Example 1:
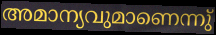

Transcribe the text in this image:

അമാന്യവുമാണെന്നു്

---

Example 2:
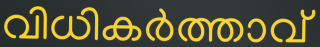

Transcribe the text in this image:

വിധികർത്താവ്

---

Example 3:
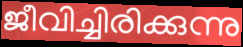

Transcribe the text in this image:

ജീവിച്ചിരിക്കുന്നു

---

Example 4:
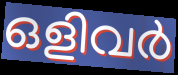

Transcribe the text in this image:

ഒളിവർ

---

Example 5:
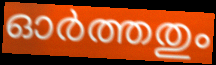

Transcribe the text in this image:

ഓർത്തതും